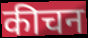
कीचन